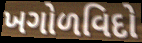
ખગોળવિદો